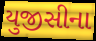
યુજીસીના